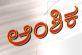
ಆಂಶಿಕ